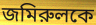
জমিরুলকে